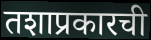
तशाप्रकारची